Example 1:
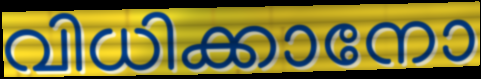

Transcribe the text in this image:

വിധിക്കാനോ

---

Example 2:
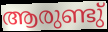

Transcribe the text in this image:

ആരുണ്ടു്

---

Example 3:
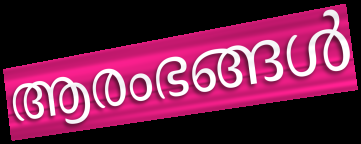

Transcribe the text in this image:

ആരംഭങ്ങൾ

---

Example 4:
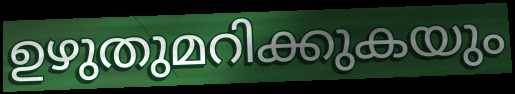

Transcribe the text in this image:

ഉഴുതുമറിക്കുകയും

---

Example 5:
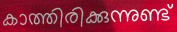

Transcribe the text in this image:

കാത്തിരിക്കുന്നുണ്ട്